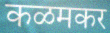
कळमकर